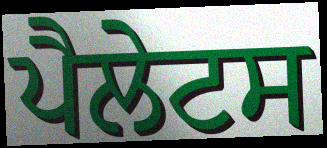
ਪੈਲੇਟਸ